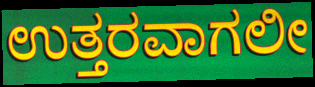
ಉತ್ತರವಾಗಲೀ